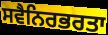
ਸਵੈਨਿਰਭਰਤਾ